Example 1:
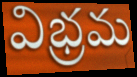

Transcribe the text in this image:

విభ్రమ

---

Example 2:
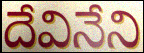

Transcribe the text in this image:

దేవినేని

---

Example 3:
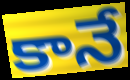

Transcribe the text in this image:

కానే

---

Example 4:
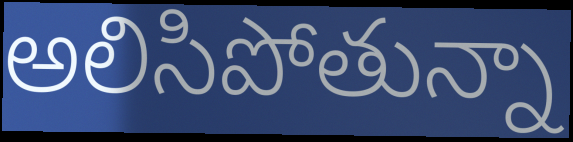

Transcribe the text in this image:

అలిసిపోతున్నా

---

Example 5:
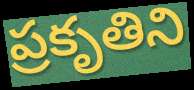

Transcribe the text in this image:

ప్రకృతిని